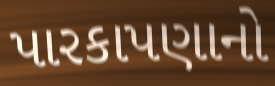
પારકાપણાનો